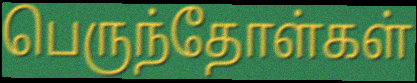
பெருந்தோள்கள்